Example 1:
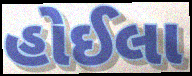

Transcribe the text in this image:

હોઈલા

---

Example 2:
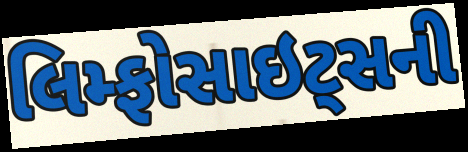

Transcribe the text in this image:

લિમ્ફોસાઇટ્સની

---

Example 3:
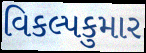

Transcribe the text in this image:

વિકલ્પકુમાર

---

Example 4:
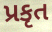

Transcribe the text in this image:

પ્રકૃત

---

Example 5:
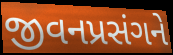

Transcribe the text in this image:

જીવનપ્રસંગને